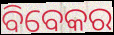
ବିବେକର